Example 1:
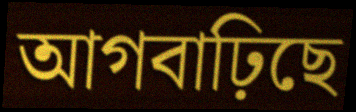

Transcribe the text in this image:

আগবাঢ়িছে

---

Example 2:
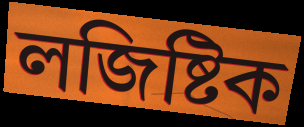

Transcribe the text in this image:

লজিষ্টিক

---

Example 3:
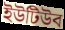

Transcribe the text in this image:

ইউটিউব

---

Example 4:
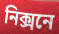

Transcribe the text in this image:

নিক্সনে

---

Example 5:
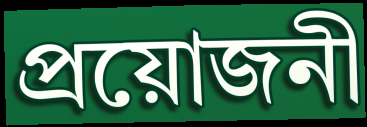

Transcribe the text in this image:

প্ৰয়োজনী